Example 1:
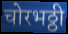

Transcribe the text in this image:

चोरभठ्ठी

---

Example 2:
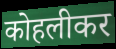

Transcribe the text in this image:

कोहलीकर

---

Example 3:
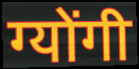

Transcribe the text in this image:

ग्योंगी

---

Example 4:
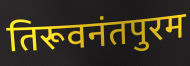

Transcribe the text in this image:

तिरूवनंतपुरम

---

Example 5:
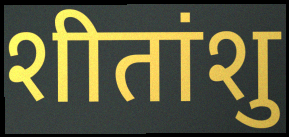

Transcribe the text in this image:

शीतांशु